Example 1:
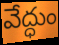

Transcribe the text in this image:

వేద్ధుం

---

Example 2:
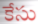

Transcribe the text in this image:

కేసు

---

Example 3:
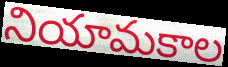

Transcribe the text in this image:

నియామకాల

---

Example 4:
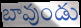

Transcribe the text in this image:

బావుండు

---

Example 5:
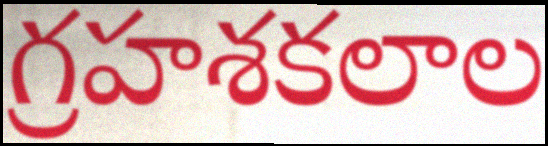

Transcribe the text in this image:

గ్రహశకలాల